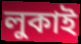
লুকাই